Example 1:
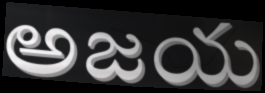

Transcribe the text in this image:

అజయ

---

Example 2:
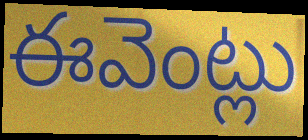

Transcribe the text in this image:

ఈవెంట్లు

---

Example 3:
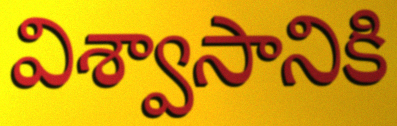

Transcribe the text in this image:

విశ్వాసానికి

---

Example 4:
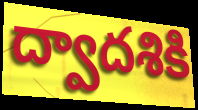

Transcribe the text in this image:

ద్వాదశికి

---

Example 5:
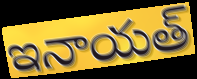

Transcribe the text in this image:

ఇనాయత్